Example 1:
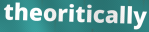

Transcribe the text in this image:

theoritically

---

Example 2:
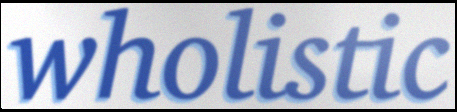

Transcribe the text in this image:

wholistic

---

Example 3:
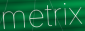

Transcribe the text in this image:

metrix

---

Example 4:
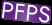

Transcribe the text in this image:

PFPS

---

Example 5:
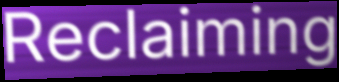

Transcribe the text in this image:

Reclaiming